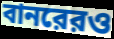
বানরেরও